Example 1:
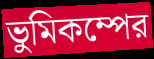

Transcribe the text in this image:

ভুমিকম্পের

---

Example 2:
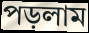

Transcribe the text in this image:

পড়লাম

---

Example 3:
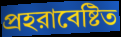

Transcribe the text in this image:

প্রহরাবেষ্টিত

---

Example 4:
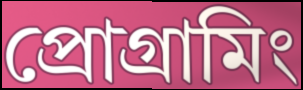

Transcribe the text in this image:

প্রোগ্রামিং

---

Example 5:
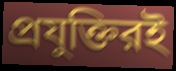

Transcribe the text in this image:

প্রযুক্তিরই